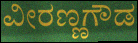
ವೀರಣ್ಣಗೌಡ